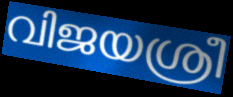
വിജയശ്രീ